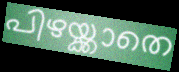
പിഴയ്ക്കാതെ